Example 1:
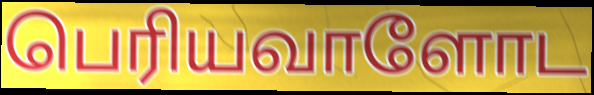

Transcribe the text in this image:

பெரியவாளோட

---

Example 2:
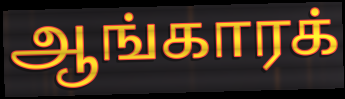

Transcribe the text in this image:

ஆங்காரக்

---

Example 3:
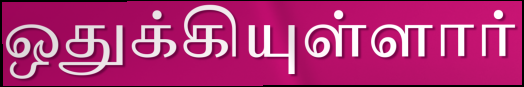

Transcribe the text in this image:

ஒதுக்கியுள்ளார்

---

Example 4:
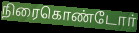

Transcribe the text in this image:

நிரைகொண்டோர்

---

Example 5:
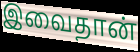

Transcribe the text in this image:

இவைதான்